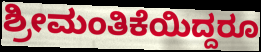
ಶ್ರೀಮಂತಿಕೆಯಿದ್ದರೂ